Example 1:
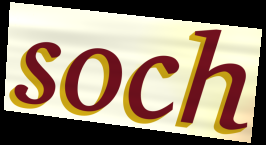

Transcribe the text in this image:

soch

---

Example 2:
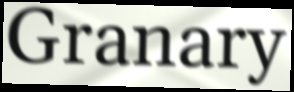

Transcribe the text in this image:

Granary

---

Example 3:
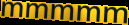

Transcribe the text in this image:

mmmmm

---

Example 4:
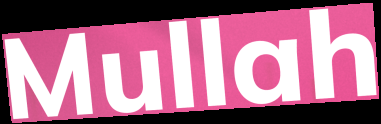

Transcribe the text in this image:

Mullah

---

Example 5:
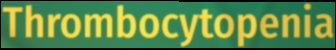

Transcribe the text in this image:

Thrombocytopenia